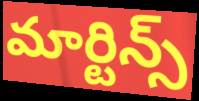
మార్టిన్స్